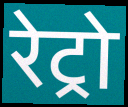
रेट्रो